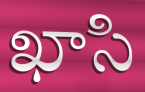
ఖాసి